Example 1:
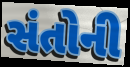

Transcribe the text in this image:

સંતોની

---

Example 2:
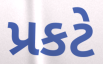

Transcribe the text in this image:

પ્રકટે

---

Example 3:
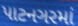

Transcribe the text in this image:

પાટનગરમાં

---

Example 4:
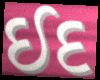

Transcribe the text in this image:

ઈદ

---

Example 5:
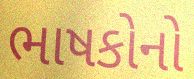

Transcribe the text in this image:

ભાષકોનો